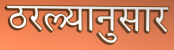
ठरल्यानुसार